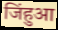
जिंहुआ